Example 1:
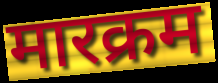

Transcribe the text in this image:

मारक्रम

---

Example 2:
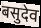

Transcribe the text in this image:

बसुदेव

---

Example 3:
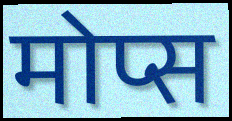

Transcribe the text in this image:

मोप्स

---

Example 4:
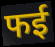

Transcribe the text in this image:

फई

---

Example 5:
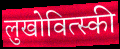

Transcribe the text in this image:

लुखोवित्स्की